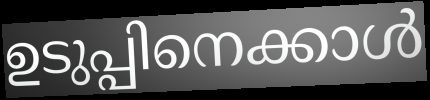
ഉടുപ്പിനെക്കാൾ